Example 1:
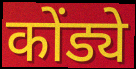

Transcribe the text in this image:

कोंड्ये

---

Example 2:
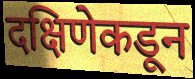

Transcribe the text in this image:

दक्षिणेकडून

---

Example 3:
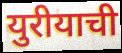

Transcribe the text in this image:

युरीयाची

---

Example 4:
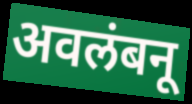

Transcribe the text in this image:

अवलंबनू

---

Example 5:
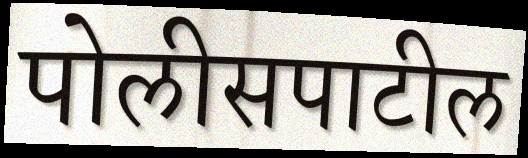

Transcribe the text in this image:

पोलीसपाटील